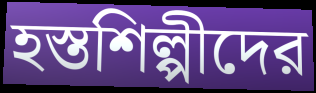
হস্তশিল্পীদের